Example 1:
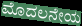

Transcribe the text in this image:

ಮೊದಲನೇಯ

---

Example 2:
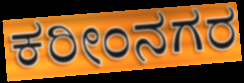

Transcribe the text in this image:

ಕರೀಂನಗರ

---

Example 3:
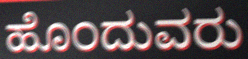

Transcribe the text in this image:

ಹೊಂದುವರು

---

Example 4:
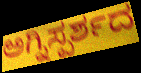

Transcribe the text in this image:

ಅಗ್ನಿಸ್ಪರ್ಶದ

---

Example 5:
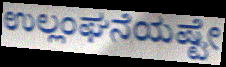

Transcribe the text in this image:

ಉಲ್ಲಂಘನೆಯಷ್ಟೇ